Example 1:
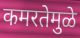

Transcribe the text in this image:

कमरतेमुळे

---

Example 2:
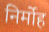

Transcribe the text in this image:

निर्मोह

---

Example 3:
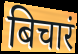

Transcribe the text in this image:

बिचारं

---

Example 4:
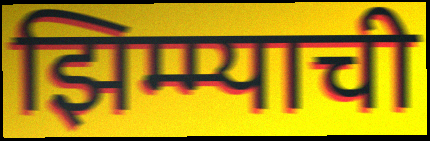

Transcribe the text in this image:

झिम्म्याची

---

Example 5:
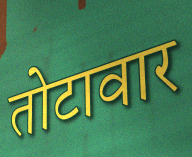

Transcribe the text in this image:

तोटावार